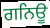
ਗਨਿਊ